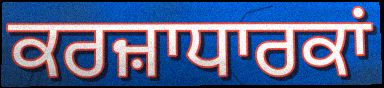
ਕਰਜ਼ਾਧਾਰਕਾਂ